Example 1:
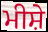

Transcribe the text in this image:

ਮੀਸ਼ੇ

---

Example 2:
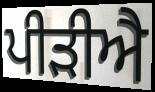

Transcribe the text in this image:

ਪੀੜੀਐ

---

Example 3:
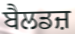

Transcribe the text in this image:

ਬੈਲਡਜ਼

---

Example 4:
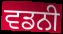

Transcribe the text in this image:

ਵਡਨੀ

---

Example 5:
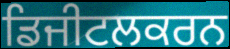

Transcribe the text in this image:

ਡਿਜੀਟਲਕਰਨ